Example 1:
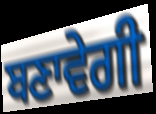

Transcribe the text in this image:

ਬਣਾਵੇਗੀ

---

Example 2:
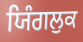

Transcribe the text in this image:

ਯਿੰਗਲੁਕ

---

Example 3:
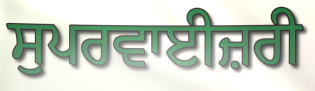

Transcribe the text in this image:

ਸੁਪਰਵਾਈਜ਼ਰੀ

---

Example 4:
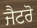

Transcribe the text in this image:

ਜੈਟਰੋ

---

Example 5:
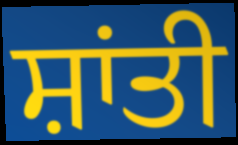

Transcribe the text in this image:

ਸ਼ਾਂਤੀ